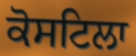
ਕੋਸਟਿਲਾ